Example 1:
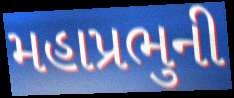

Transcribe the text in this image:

મહાપ્રભુની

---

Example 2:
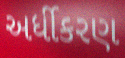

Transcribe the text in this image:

અર્ધીકરણ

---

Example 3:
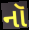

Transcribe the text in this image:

નૉ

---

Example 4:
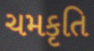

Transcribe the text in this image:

ચમકૃતિ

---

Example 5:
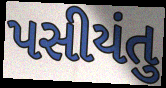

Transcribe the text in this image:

પસીયંતુ